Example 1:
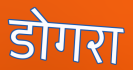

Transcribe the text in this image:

डोगरा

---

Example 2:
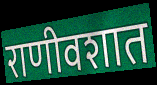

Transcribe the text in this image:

राणीवशात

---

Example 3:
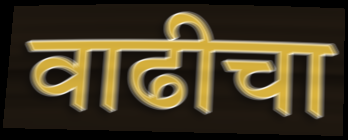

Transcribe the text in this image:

वाढीचा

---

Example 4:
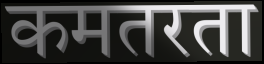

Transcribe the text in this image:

कमतरता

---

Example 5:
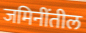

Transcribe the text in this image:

जमिनींतील